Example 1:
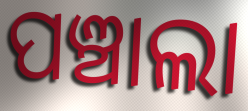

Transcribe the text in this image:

ପଞ୍ଚାଲା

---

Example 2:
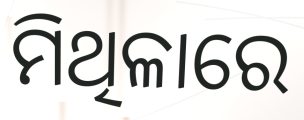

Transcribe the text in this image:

ମିଥିଳାରେ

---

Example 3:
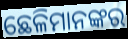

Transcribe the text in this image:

ଛେଳିମାନଙ୍କର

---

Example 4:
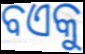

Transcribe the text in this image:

ବଏକୁ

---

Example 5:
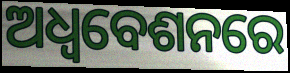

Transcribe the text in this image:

ଅଧ୍ଵବେଶନରେ